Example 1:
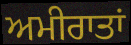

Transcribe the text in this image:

ਅਮੀਰਾਤਾਂ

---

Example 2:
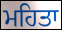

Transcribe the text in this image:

ਮਹਿਤਾ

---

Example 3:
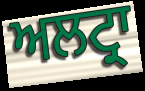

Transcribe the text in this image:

ਅਲਟ੍ਰਾ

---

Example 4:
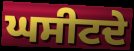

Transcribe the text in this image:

ਘਸੀਟਦੇ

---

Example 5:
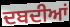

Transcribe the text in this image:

ਦਬਦੀਆਂ